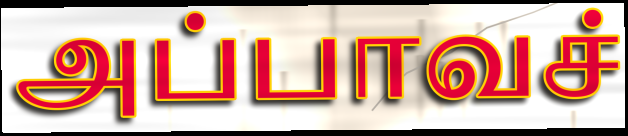
அப்பாவச்